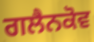
ਗਲੈਨਕੋਵ